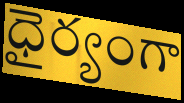
ధైర్యంగా